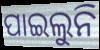
ପାଇଲୁନି